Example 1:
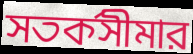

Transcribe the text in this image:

সতর্কসীমার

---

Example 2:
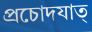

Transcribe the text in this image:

প্রচোদযাত্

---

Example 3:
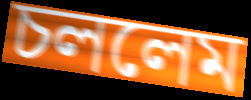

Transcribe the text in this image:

চললেম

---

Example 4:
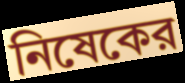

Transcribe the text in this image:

নিষেকের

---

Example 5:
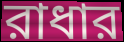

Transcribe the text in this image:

রাধার